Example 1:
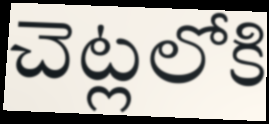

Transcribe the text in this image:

చెట్లలోకి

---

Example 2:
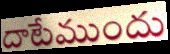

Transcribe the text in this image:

దాటేముందు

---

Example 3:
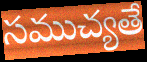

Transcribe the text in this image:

సముచ్యతే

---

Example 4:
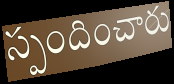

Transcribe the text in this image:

స్పందించారు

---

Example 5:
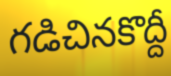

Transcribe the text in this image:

గడిచినకొద్దీ